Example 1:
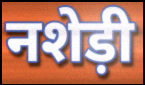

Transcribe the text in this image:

नशेड़ी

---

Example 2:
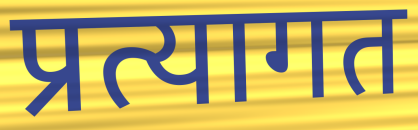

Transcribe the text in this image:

प्रत्यागत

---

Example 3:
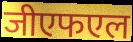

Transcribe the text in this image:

जीएफएल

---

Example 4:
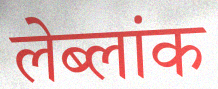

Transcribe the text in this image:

लेब्लांक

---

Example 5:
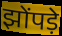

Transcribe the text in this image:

झोंपड़े